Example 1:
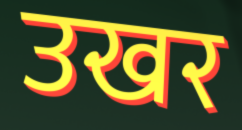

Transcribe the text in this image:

उखर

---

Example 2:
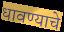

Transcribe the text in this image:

धावण्याचे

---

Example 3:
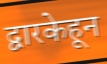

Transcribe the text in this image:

द्वारकेहून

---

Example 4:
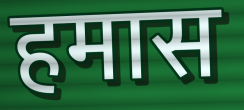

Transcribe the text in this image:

हमास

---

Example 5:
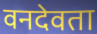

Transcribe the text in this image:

वनदेवता